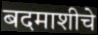
बदमाशीचे